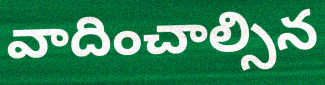
వాదించాల్సిన